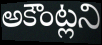
అకౌంట్లని